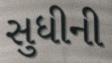
સુધીની